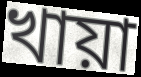
খায়া